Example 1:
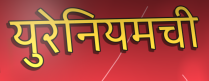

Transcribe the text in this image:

युरेनियमची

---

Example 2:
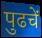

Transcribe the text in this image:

पुढचें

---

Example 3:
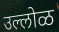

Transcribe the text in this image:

उल्लोळ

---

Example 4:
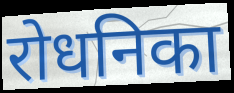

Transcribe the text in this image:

रोधनिका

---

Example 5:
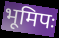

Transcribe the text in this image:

भूमिपः